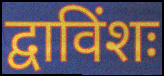
द्वाविंशः